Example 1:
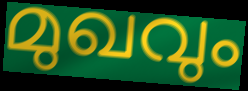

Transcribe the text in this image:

മുഖവും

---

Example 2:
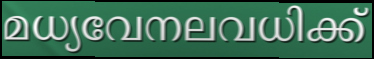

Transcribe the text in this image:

മധ്യവേനലവധിക്ക്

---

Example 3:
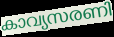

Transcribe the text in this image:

കാവ്യസരണി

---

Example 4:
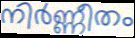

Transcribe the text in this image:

നിർണ്ണീതം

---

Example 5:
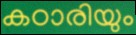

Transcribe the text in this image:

കഠാരിയും